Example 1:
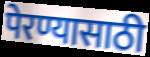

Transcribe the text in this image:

पेरण्यासाठी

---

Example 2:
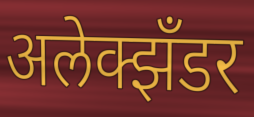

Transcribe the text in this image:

अलेक्झँडर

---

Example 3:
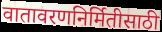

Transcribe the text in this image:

वातावरणनिर्मितीसाठी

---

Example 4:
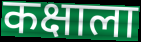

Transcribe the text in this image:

कक्षाला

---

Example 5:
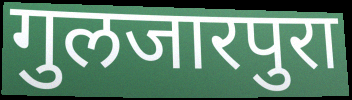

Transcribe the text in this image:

गुलजारपुरा